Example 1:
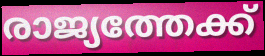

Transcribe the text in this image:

രാജ്യത്തേക്ക്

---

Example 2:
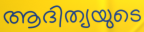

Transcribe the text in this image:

ആദിത്യയുടെ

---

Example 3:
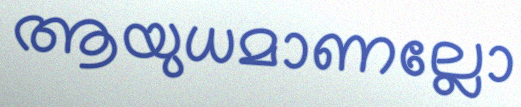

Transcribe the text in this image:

ആയുധമാണല്ലോ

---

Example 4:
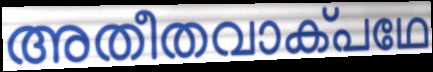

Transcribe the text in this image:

അതീതവാക്പഥേ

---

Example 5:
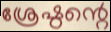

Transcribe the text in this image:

ശ്രേഷ്ഠന്റെ